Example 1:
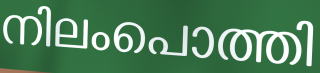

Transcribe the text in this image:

നിലംപൊത്തി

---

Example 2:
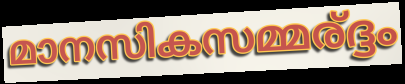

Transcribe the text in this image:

മാനസികസമ്മര്ദ്ദം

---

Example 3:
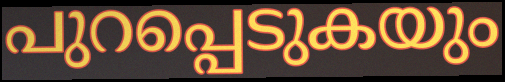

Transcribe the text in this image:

പുറപ്പെടുകയും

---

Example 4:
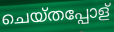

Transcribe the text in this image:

ചെയ്തപ്പോള്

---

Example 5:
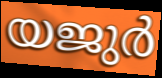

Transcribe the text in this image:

യജുർ